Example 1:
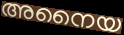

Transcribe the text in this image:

അനൈയ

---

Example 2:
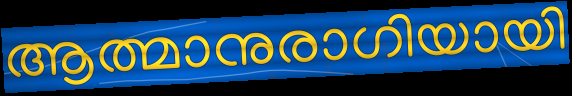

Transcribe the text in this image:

ആത്മാനുരാഗിയായി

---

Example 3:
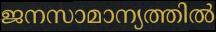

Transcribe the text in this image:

ജനസാമാന്യത്തിൽ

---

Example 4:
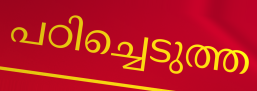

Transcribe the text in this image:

പഠിച്ചെടുത്ത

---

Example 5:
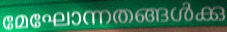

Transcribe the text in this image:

മേഘോന്നതങ്ങൾക്കു